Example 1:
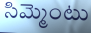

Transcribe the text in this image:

సిమ్మెంటు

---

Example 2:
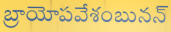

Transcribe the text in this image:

బ్రాయోపవేశంబునన్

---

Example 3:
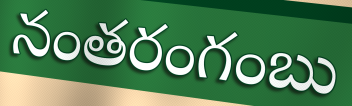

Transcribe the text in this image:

నంతరంగంబు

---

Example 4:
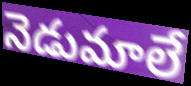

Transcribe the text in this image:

నెడుమాలే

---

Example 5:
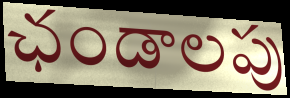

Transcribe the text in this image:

ఛండాలపు